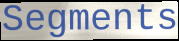
Segments